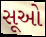
સૂઓ